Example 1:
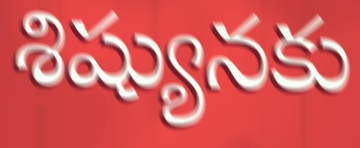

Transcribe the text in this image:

శిష్యునకు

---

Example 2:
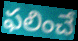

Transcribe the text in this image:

ఫలించే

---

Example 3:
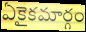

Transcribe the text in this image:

ఏకైకమార్గం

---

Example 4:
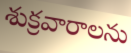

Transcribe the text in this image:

శుక్రవారాలను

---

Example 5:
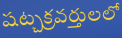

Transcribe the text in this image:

షట్చక్రవర్తులలో